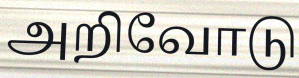
அறிவோடு